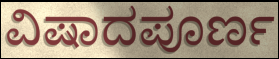
ವಿಷಾದಪೂರ್ಣ